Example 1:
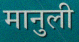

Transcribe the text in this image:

मानुली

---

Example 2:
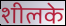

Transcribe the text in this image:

शीलके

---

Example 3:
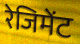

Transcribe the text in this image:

रेजिमेंट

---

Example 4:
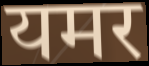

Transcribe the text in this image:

यमर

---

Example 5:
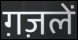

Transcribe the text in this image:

ग़ज़लें